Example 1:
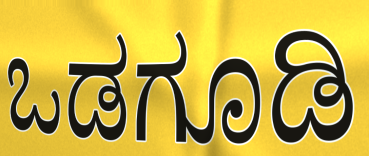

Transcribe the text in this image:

ಒಡಗೂಡಿ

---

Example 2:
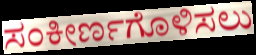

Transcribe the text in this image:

ಸಂಕೀರ್ಣಗೊಳಿಸಲು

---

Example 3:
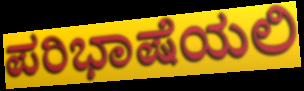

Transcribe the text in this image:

ಪರಿಭಾಷೆಯಲಿ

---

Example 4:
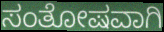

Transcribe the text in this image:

ಸಂತೋಷವಾಗಿ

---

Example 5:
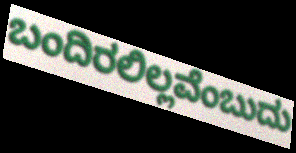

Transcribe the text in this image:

ಬಂದಿರಲಿಲ್ಲವೆಂಬುದು